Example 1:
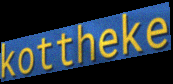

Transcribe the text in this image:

kottheke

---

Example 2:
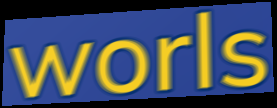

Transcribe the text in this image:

worls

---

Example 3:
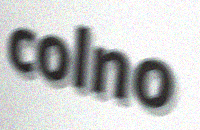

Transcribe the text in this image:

colno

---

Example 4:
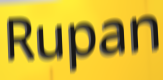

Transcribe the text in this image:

Rupan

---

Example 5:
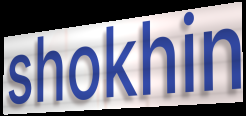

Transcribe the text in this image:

shokhin